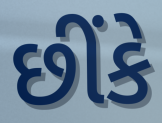
છીંકે